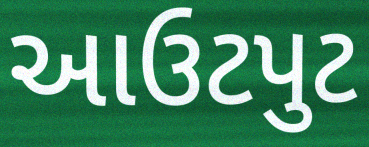
આઉટપુટ